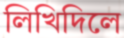
লিখিদিলে